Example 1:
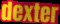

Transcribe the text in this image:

dexter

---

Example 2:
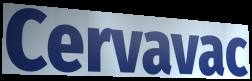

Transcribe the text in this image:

Cervavac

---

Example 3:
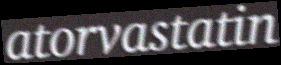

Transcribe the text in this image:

atorvastatin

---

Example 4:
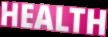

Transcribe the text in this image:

HEALTH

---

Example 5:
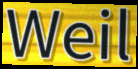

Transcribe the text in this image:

Weil